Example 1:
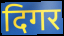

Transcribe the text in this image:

दिगर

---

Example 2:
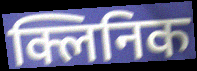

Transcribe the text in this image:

क्लिनिक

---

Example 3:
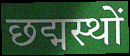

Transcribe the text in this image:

छद्मस्थों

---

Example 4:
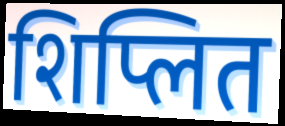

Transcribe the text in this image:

शिप्लित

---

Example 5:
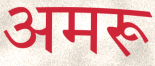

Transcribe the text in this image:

अमरू